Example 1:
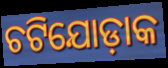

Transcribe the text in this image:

ଚଟିଯୋଡ଼ାକ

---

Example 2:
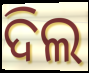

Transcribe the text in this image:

ଦିଲ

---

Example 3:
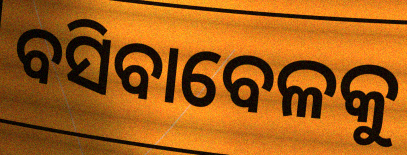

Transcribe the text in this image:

ବସିବାବେଳକୁ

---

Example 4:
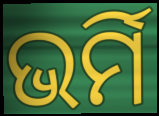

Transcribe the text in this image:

ଭର୍ମି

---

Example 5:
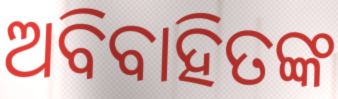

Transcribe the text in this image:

ଅବିବାହିତଙ୍କ